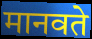
मानवते